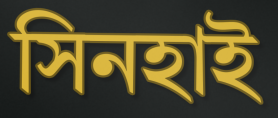
সিনহাই